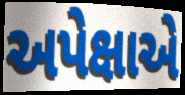
અપેક્ષાએ